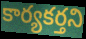
కార్యకర్తని